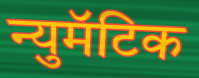
न्युमॅटिक